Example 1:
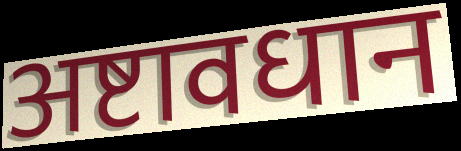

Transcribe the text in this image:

अष्टावधान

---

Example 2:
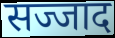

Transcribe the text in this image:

सज्जाद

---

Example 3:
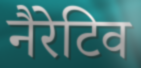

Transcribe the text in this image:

नैरेटिव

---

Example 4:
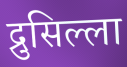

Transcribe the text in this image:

द्रुसिल्ला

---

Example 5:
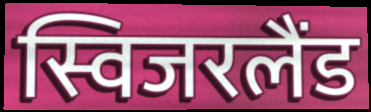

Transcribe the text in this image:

स्विजरलैंड